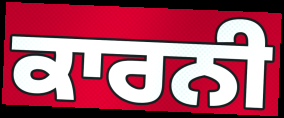
ਕਾਰਨੀ